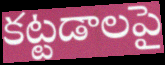
కట్టడాలపై